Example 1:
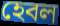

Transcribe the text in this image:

হেবল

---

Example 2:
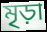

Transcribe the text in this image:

মৃড়া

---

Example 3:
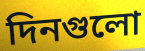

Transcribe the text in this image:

দিনগুলো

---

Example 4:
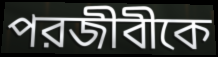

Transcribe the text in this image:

পরজীবীকে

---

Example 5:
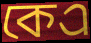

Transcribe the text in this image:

কেএ